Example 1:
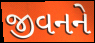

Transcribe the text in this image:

જીવનને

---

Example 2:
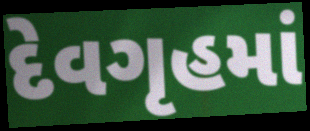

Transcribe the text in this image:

દેવગૃહમાં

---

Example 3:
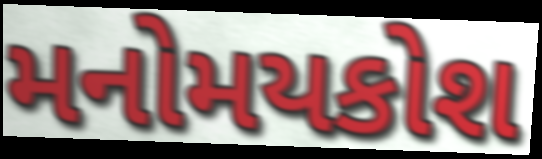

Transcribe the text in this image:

મનોમયકોશ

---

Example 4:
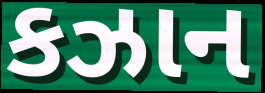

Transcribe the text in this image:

કઝાન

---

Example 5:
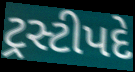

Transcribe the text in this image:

ટ્રસ્ટીપદે